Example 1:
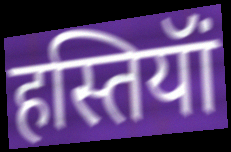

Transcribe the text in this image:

हस्तियॉं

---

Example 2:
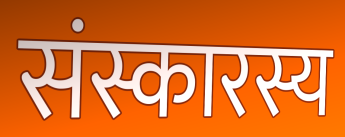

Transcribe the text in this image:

संस्कारस्य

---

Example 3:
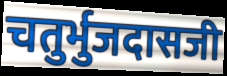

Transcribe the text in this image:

चतुर्भुजदासजी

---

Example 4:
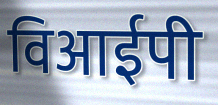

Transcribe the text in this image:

विआईपी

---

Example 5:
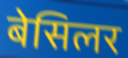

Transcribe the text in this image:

बेसिलर